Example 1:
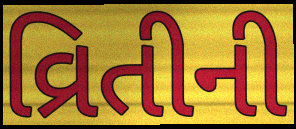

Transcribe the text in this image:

વ્રિતીની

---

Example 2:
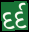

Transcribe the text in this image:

દર્દ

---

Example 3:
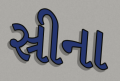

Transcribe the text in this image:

સ્રીના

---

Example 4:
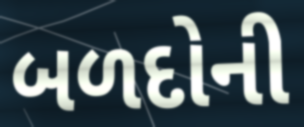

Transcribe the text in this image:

બળદોની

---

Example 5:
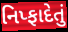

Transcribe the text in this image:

નિપ્ફાદેતું